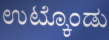
ಉಟ್ಕೊಂಡು